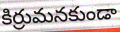
కిర్రుమనకుండా